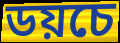
ডয়চে